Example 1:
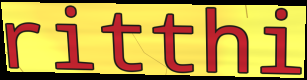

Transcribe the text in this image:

ritthi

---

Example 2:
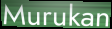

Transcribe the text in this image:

Murukan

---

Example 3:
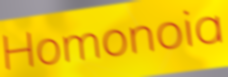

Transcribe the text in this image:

Homonoia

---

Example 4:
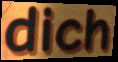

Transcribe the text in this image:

dich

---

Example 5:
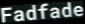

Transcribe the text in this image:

Fadfade